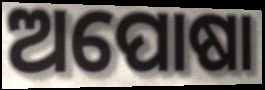
ଅପୋଷା